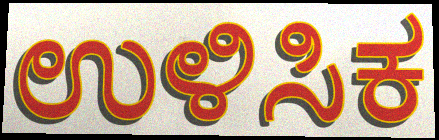
ಉಳಿಸಿಕ